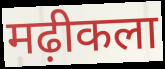
मढ़ीकला